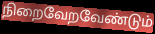
நிறைவேறவேண்டும்